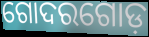
ଗୋଦରଗୋଡ଼